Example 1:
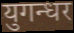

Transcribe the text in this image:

युगन्धर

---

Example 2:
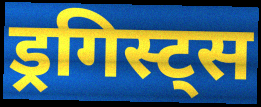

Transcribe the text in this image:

ड्रगिस्ट्स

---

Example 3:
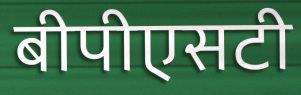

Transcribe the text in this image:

बीपीएसटी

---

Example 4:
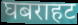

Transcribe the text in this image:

घबराहट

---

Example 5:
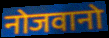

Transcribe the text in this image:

नोजवानो